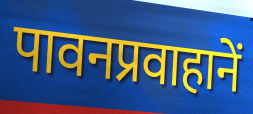
पावनप्रवाहानें